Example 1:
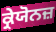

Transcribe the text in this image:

ਕ੍ਰੇਯੋਨਜ਼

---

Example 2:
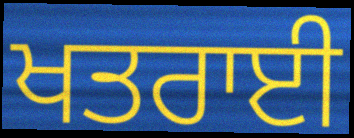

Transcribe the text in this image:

ਖਤਰਾਈ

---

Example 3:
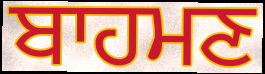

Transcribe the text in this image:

ਬਾਹਮਣ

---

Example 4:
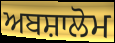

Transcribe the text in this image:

ਅਬਸ਼ਾਲੋਮ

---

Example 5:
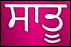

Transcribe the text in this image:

ਸਾਤੂ